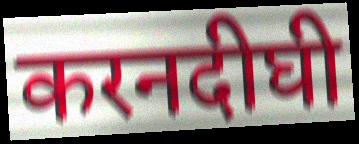
करनदीघी